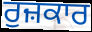
ਰੁਜ਼ਕਾਰ